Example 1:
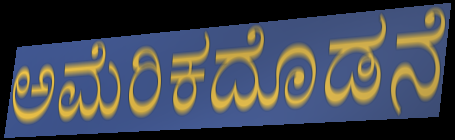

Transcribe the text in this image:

ಅಮೆರಿಕದೊಡನೆ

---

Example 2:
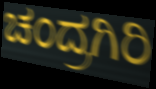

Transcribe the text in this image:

ಚಂದ್ರಗಿರಿ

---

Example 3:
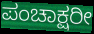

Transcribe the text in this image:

ಪಂಚಾಕ್ಷರೀ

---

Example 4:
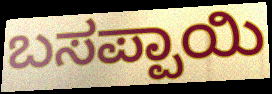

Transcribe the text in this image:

ಬಸಪ್ಪಾಯಿ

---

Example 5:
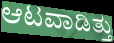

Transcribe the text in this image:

ಆಟವಾಡಿತ್ತು